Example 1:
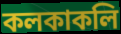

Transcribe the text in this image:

কলকাকলি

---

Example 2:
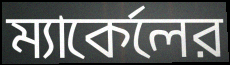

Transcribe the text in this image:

ম্যার্কেলের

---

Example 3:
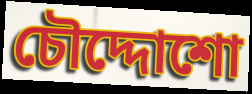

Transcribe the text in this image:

চৌদ্দোশো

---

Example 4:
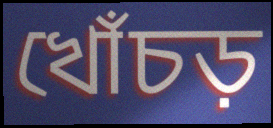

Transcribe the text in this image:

খোঁচড়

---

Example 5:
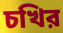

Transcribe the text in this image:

চখির